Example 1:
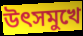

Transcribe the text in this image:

উৎসমুখে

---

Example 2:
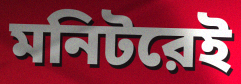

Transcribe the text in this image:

মনিটরেই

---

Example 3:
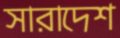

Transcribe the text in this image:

সারাদেশ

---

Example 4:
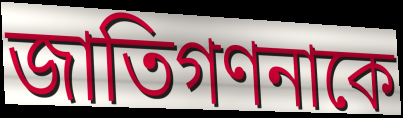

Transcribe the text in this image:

জাতিগণনাকে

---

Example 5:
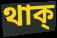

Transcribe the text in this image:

থাক্